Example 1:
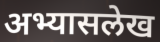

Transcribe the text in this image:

अभ्यासलेख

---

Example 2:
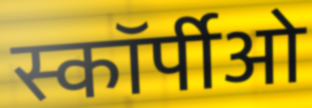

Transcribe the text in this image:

स्कॉर्पीओ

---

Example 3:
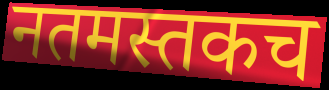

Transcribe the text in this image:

नतमस्तकच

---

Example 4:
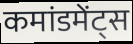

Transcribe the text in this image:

कमांडमेंट्स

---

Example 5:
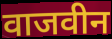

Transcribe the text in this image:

वाजवीन